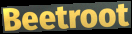
Beetroot